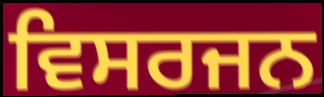
ਵਿਸਰਜਨ